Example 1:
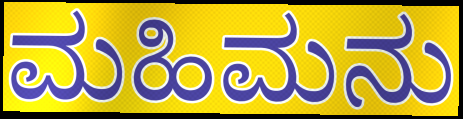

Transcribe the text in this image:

ಮಹಿಮನು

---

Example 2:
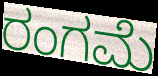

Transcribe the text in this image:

ರಂಗಮೆ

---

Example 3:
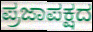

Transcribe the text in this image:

ಪ್ರಜಾಪಕ್ಷದ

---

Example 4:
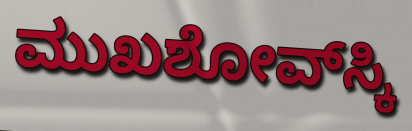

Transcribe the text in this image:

ಮುಖಶೋವ್‌ಸ್ಕಿ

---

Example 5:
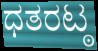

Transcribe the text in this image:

ಧತರಟ್ಠ